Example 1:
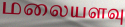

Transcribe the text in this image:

மலையளவு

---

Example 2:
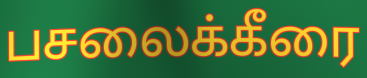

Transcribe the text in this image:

பசலைக்கீரை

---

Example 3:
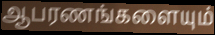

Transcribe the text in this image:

ஆபரணங்களையும்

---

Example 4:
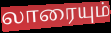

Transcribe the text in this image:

லாரையும்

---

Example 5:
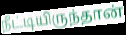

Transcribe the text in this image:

நீட்டியிருந்தான்